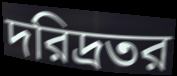
দরিদ্রতর